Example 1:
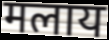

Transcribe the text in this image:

मलाय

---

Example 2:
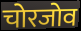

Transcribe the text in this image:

चोरजोव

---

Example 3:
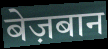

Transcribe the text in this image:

बेज़बान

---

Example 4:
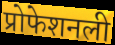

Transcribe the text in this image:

प्रोफेशनली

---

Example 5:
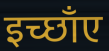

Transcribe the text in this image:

इच्छाँए